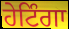
ਹੇਟਿੰਗਾ